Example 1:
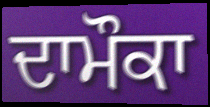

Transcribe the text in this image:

ਦਾਮੌਕਾ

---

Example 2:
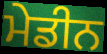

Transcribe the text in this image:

ਮੇਡੀਨ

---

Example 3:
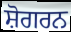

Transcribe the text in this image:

ਸ਼ੋਗਰਨ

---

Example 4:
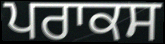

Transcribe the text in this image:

ਪਰਾਕਸ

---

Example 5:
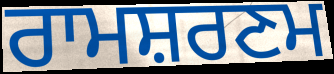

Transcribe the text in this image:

ਰਾਮਸ਼ਰਣਮ